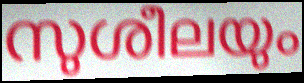
സുശീലയും